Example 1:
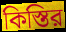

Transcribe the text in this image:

কিস্তির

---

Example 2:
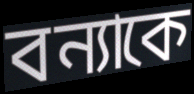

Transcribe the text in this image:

বন্যাকে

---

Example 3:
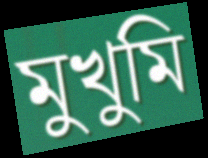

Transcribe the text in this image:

মুখুমি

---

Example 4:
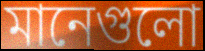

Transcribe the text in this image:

মানেগুলো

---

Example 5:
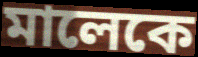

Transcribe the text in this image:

মালেকে